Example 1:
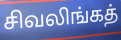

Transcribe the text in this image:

சிவலிங்கத்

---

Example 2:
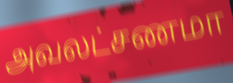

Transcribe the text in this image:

அவலட்சணமா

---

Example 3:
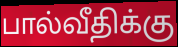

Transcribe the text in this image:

பால்வீதிக்கு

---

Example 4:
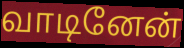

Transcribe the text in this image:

வாடினேன்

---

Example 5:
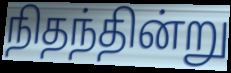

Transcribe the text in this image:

நிதந்தின்று